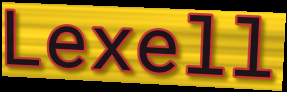
Lexell